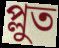
প্লুত